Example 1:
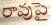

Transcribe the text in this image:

రావుపై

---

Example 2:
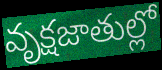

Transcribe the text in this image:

వృక్షజాతుల్లో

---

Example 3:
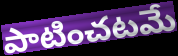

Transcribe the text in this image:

పాటించటమే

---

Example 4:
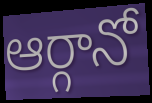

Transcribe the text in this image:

ఆర్గానో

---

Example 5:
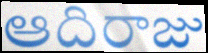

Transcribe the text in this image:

ఆదిరాజు